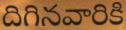
దిగినవారికి